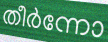
തീർന്നോ